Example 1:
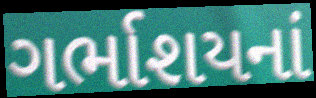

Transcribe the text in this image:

ગર્ભાશયનાં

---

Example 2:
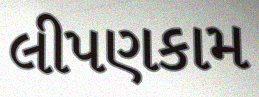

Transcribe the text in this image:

લીપણકામ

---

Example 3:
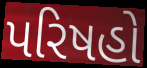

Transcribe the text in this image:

પરિષહો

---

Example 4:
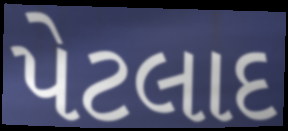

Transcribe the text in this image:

પેટલાદ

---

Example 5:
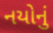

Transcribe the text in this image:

નયોનું